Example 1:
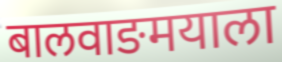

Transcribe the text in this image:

बालवाङमयाला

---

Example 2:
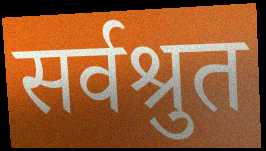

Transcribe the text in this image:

सर्वश्रुत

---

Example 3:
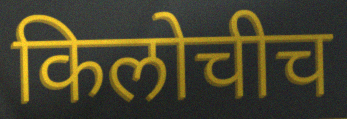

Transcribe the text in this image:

किलोचीच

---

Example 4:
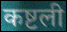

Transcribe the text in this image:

कष्टली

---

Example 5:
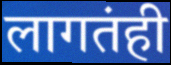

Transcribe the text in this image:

लागतंही